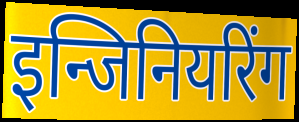
इन्जिनियरिंग